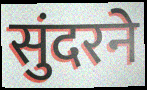
सुंदरने